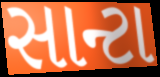
સાન્ટા